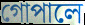
গোপালে